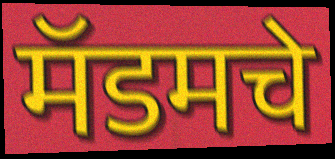
मॅडमचे